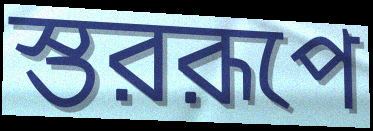
স্তররূপে